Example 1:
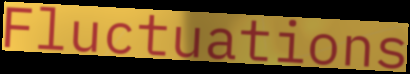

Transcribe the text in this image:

Fluctuations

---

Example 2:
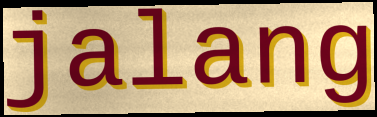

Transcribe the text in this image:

jalang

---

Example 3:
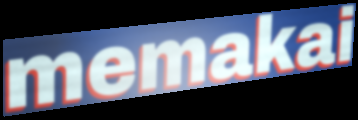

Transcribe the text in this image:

memakai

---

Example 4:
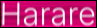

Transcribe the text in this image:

Harare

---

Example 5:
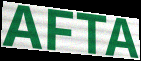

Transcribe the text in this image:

AFTA